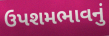
ઉપશમભાવનું